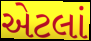
એટલાં